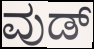
ವುಡ್